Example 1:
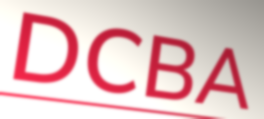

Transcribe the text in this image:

DCBA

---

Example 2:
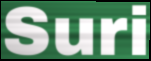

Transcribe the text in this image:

Suri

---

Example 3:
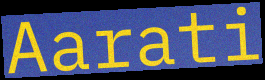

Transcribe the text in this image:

Aarati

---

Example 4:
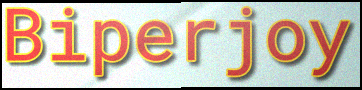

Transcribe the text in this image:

Biperjoy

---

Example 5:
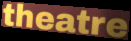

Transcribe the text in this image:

theatre